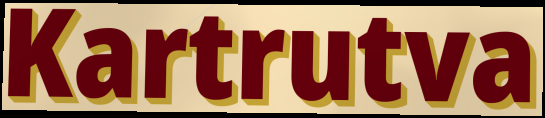
Kartrutva